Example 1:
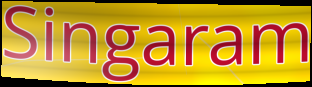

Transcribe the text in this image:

Singaram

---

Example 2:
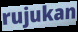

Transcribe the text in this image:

rujukan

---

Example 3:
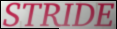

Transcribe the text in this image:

STRIDE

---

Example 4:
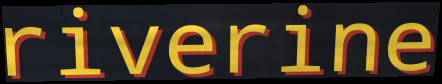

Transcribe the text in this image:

riverine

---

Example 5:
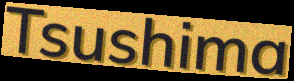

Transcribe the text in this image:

Tsushima